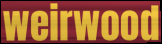
weirwood